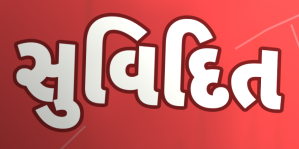
સુવિદિત